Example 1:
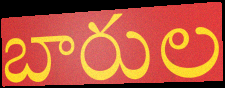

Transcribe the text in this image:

బారుల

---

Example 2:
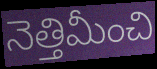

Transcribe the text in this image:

నెత్తిమీంచి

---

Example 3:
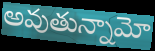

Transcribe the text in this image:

అవుతున్నామో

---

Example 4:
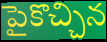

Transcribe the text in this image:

పైకొచ్చిన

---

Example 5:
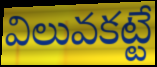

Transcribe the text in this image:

విలువకట్టే